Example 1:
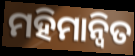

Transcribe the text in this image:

ମହିମାନ୍ୱିତ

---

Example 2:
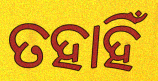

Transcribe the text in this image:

ତହାହିଁ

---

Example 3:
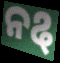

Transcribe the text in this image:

ନୡ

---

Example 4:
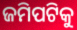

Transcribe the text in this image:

ଜମିପଟିକୁ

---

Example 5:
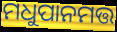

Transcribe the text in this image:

ମଧୁପାନମତ୍ତ